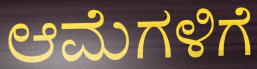
ಆಮೆಗಳಿಗೆ